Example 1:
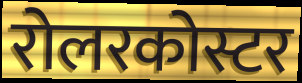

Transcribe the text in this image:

रोलरकोस्टर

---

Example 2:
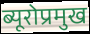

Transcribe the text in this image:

ब्यूरोप्रमुख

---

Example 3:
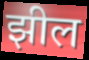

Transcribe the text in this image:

झील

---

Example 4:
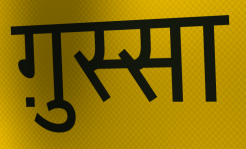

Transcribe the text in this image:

ग़ुस्सा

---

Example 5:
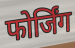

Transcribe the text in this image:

फोर्जिंग